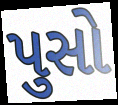
પુસો